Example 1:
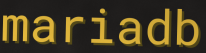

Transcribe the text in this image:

mariadb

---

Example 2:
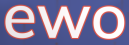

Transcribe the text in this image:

ewo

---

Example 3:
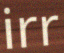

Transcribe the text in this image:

irr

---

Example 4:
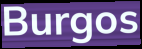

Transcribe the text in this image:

Burgos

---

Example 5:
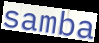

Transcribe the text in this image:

samba